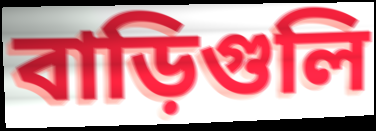
বাড়িগুলি